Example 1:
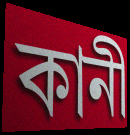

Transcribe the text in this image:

কানী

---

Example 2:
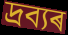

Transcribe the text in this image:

দ্ৰব্যৰ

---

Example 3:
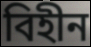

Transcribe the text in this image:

বিহীন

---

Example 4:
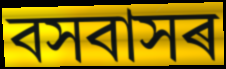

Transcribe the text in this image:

বসবাসৰ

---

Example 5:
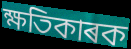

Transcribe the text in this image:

ক্ষতিকাৰক